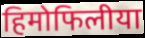
हिमोफिलीया